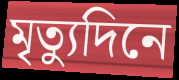
মৃত্যুদিনে